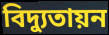
বিদ্যুতায়ন